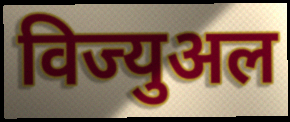
विज्युअल